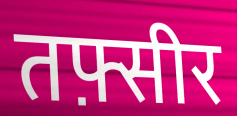
तफ़्सीर